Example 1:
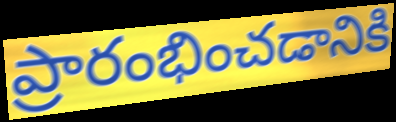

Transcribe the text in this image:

ప్రారంభించడానికి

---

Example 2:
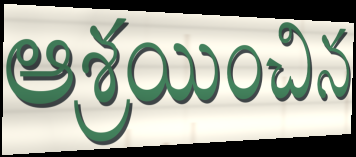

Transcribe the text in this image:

ఆశ్రయించిన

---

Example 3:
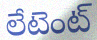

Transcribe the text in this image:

లేటెంట్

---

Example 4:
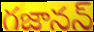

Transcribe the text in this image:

గజానన్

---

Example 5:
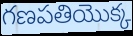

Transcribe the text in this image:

గణపతియొక్క